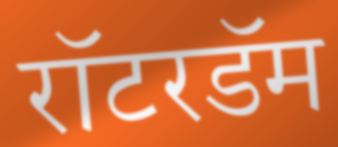
रॉटरडॅम